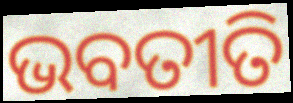
ଭବତୀତି